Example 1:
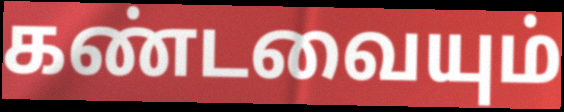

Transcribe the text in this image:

கண்டவையும்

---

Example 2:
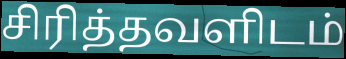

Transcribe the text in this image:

சிரித்தவளிடம்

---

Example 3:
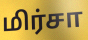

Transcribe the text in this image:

மிர்சா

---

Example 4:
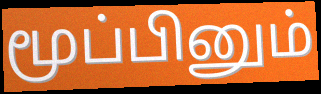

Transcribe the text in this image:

மூப்பினும்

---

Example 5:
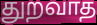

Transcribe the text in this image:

துறவாத